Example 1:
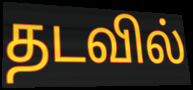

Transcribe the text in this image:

தடவில்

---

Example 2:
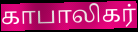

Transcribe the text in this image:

காபாலிகர்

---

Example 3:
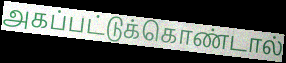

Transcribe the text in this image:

அகப்பட்டுக்கொண்டால்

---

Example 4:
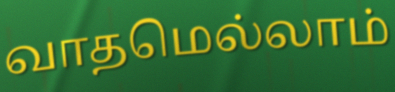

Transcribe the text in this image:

வாதமெல்லாம்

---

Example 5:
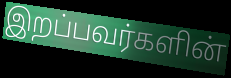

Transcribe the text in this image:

இறப்பவர்களின்